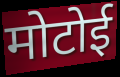
मोटोई